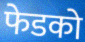
फेडको